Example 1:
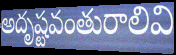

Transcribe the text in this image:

అదృష్టవంతురాలివి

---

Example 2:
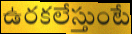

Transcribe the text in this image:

ఉరకలేస్తుంటే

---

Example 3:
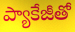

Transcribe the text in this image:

ప్యాకేజీతో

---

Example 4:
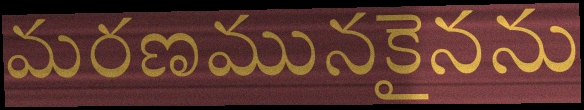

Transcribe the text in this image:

మరణమునకైనను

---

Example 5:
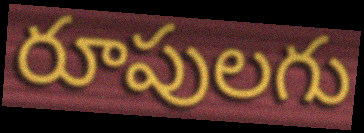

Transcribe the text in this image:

రూపులగు